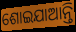
ଶୋଇଯାଆନ୍ତି